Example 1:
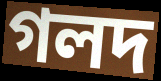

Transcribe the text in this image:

গলদ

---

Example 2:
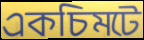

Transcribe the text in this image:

একচিমটে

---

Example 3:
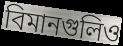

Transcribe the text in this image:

বিমানগুলিও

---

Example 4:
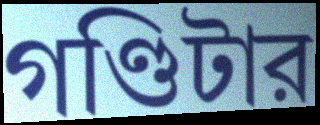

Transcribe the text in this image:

গণ্ডিটার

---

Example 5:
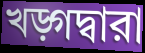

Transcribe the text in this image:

খড়্গদ্বারা